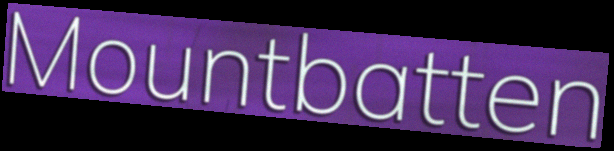
Mountbatten